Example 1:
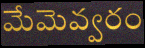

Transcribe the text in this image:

మేమెవ్వరం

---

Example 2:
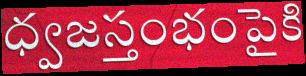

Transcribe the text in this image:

ధ్వజస్తంభంపైకి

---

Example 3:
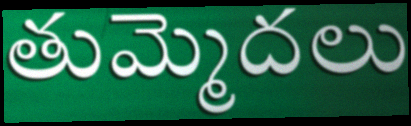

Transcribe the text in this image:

తుమ్మెదలు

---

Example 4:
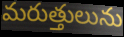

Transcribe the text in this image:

మరుత్తులును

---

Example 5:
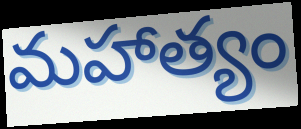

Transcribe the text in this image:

మహాత్యం